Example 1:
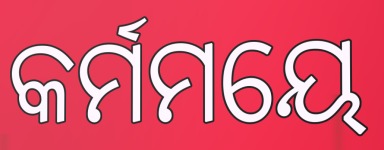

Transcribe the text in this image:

କର୍ମମୟେ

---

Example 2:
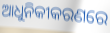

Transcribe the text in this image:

ଆଧୁନିକୀକରଣରେ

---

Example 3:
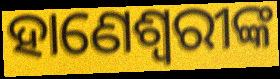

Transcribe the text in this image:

ହାଣେଶ୍ୱରୀଙ୍କ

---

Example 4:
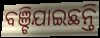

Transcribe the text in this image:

ବଞ୍ଚିଯାଇଛନ୍ତି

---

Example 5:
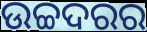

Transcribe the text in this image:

ଉଚ୍ଚଦରର